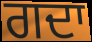
ਗਦਾ